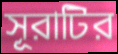
সূরাটির